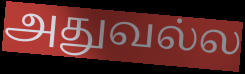
அதுவல்ல